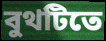
বুথটিতে